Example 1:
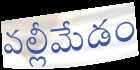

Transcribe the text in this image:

వల్లీమేడం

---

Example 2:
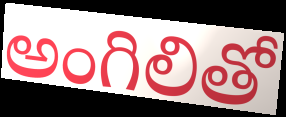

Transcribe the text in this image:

అంగిలితో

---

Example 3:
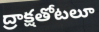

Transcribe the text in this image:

ద్రాక్షతోటలూ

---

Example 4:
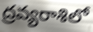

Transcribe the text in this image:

ద్రవ్యరాశిలో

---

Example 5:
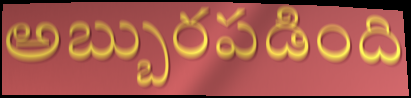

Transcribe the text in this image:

అబ్బురపడింది